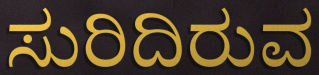
ಸುರಿದಿರುವ